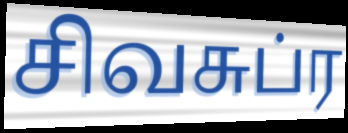
சிவசுப்ர